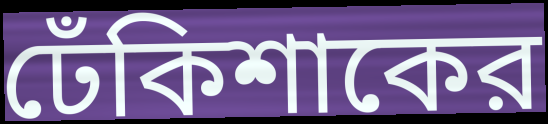
ঢেঁকিশাকের